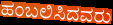
ಹಂಬಲಿಸಿದವರು